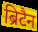
ब्रिटैन